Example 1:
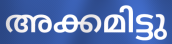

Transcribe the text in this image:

അക്കമിട്ടു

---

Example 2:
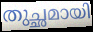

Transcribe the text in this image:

തുച്ഛമായി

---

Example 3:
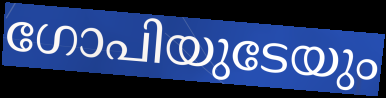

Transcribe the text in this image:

ഗോപിയുടേയും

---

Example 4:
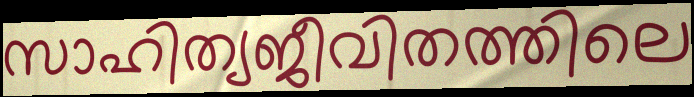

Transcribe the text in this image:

സാഹിത്യജീവിതത്തിലെ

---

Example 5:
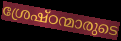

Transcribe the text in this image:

ശ്രേഷ്ഠന്മാരുടെ